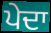
ਪੇਦਾ